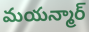
మయన్మార్